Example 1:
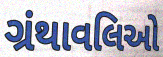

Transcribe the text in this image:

ગ્રંથાવલિઓ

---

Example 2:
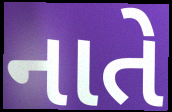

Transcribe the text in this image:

નાતે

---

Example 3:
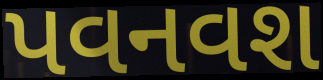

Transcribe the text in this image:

પવનવશ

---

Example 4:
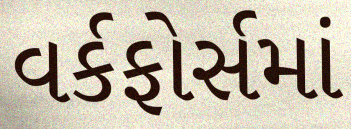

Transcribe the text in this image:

વર્કફોર્સમાં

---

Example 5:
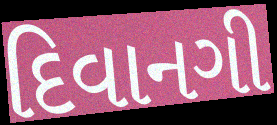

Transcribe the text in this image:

દિવાનગી